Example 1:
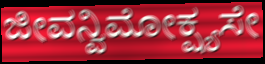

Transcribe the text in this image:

ಜೀವನ್ವಿಮೋಕ್ಷ್ಯಸೇ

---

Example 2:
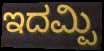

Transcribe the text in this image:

ಇದಮ್ಪಿ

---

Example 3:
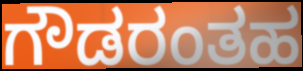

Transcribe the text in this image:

ಗೌಡರಂತಹ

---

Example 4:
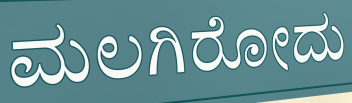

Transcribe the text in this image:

ಮಲಗಿರೋದು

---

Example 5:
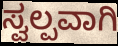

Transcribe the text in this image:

ಸ್ವಲ್ಪವಾಗಿ